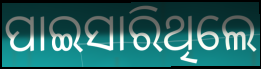
ପାଇସାରିଥିଲେ